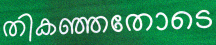
തികഞ്ഞതോടെ